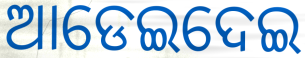
ଆଡେଇଦେଇ